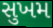
સુખમ